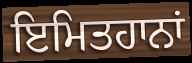
ਇਮਿਤਹਾਨਾਂ